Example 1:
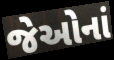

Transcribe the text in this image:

જેઓનાં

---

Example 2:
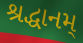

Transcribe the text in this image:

શ્રદ્ધાનમ્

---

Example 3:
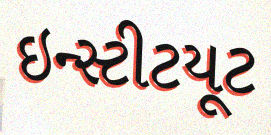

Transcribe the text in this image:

ઇન્સ્ટીટયૂટ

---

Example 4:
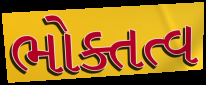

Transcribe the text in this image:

ભોક્તત્વ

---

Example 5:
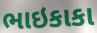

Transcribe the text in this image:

ભાઇકાકા